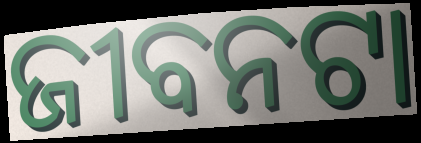
ଜୀବନଟା